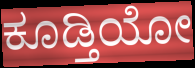
ಕೂಡ್ತಿಯೋ